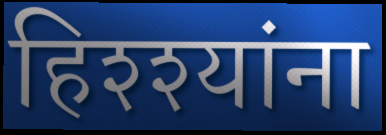
हिश्श्यांना